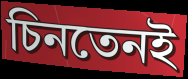
চিনতেনই